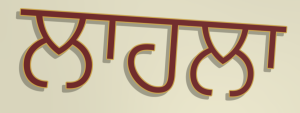
ਲਾਹਲਾ